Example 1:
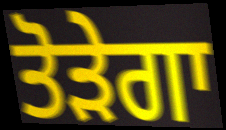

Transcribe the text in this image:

ਤੋੜੇਗਾ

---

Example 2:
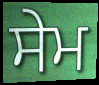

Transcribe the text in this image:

ਸੇਮ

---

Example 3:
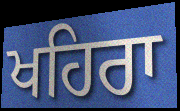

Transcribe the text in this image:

ਖਹਿਰਾ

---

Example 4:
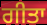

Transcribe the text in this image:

ਗੀਤਾ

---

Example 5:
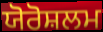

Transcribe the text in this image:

ਯੋਰੋਸ਼ਲਮ